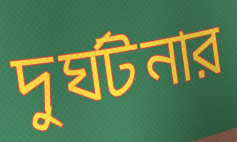
দুর্ঘটনার